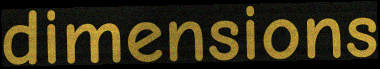
dimensions